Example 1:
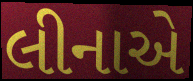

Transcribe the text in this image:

લીનાએ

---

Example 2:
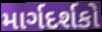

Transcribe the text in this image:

માર્ગદર્શકો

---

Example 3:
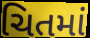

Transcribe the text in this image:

ચિતમાં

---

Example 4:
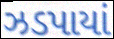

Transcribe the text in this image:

ઝડપાયાં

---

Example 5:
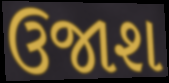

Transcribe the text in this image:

ઉજાશ